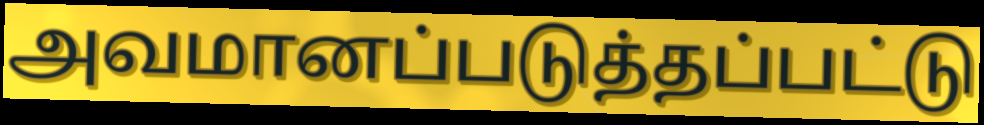
அவமானப்படுத்தப்பட்டு